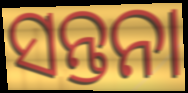
ସନ୍ତନା